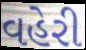
વહેરી